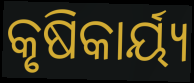
କୃଷିକାର୍ୟ୍ୟ